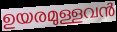
ഉയരമുള്ളവൻ